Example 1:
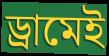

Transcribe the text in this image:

ড্রামেই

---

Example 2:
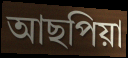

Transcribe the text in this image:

আছপিয়া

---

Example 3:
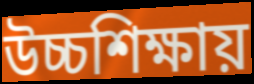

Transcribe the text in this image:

উচ্চশিক্ষায়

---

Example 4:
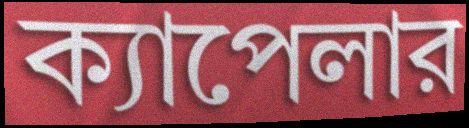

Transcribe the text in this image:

ক্যাপেলার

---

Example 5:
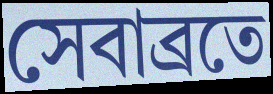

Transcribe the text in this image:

সেবাব্রতে